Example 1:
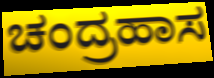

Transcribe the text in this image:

ಚಂದ್ರಹಾಸ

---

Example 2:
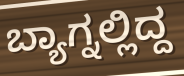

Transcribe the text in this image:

ಬ್ಯಾಗ್ನಲ್ಲಿದ್ದ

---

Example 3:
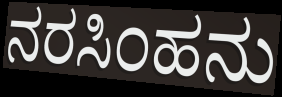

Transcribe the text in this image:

ನರಸಿಂಹನು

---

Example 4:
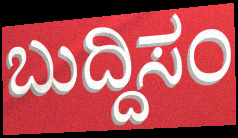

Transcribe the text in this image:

ಬುದ್ದಿಸಂ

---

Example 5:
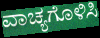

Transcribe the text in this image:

ವಾಚ್ಯಗೊಳಿಸಿ